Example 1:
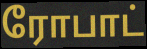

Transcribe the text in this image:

ரோபாட்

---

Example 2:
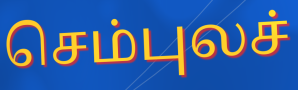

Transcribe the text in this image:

செம்புலச்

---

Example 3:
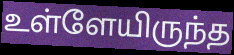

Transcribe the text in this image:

உள்ளேயிருந்த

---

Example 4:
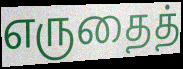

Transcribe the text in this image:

எருதைத்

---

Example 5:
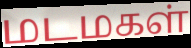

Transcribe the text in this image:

மடமகள்